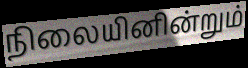
நிலையினின்றும்